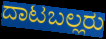
ದಾಟಬಲ್ಲರು